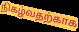
நிகழ்வதற்காக